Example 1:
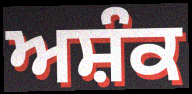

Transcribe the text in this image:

ਅਸ਼ੰਕ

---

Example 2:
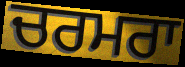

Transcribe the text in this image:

ਚਰਮਰਾ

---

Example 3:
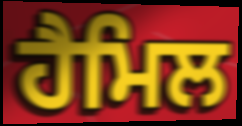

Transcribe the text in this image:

ਹੈਮਿਲ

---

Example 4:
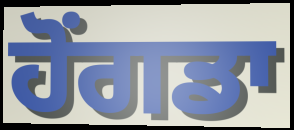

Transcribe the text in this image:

ਹੋਂਗਡਾ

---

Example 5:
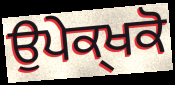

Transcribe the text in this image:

ਉਪੇਕ੍ਖਕੋ